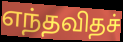
எந்தவிதச்